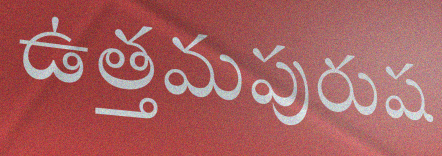
ఉత్తమపురుష